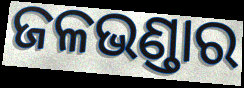
ଜଳଭଣ୍ଡାର